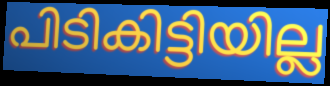
പിടികിട്ടിയില്ല